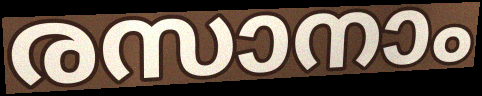
രസാനാം